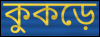
কুকড়ে